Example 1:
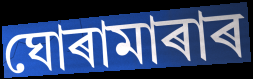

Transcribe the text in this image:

ঘোৰামাৰাৰ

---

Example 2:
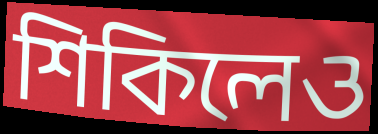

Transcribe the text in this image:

শিকিলেও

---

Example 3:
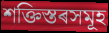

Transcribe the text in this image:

শক্তিস্তৰসমূহ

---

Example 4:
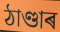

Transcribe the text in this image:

ঠাণ্ডাৰ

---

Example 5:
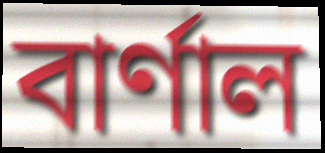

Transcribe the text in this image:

বাৰ্ণাল